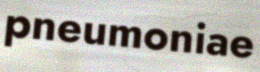
pneumoniae